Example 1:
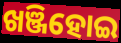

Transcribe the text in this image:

ଖଞ୍ଜିହୋଇ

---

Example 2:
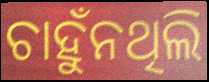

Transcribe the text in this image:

ଚାହୁଁନଥିଲି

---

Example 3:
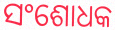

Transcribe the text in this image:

ସଂଶୋଧକ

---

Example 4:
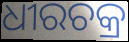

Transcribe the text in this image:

ଧୀରଚକ୍ର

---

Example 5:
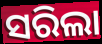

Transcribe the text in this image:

ସରିଲା